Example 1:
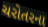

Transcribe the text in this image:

ચરોતરના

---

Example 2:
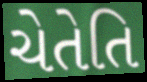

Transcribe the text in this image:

ચેતેતિ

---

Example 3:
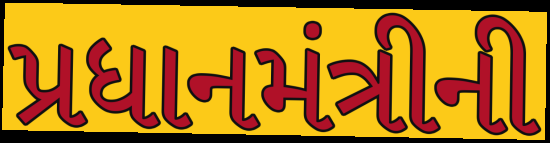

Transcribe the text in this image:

પ્રધાનમંત્રીની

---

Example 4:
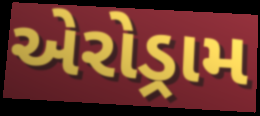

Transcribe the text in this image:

એરોડ્રામ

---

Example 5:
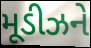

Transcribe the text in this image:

મૂડીઝને